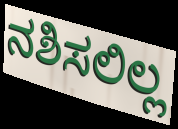
ನಶಿಸಲಿಲ್ಲ